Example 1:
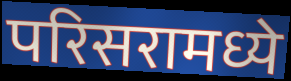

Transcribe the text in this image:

परिसरामध्ये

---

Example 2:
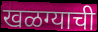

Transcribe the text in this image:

खळग्याची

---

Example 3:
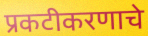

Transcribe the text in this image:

प्रकटीकरणाचे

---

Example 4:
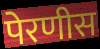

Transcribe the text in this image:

पेरणीस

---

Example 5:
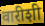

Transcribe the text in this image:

वारीशी